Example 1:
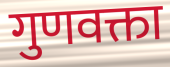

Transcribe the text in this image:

गुणवक्ता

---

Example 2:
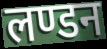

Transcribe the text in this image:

लण्डन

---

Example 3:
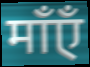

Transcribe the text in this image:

माँएँ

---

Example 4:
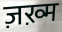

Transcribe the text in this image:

ज़ख़्म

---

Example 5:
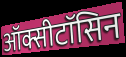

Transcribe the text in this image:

ऑक्सीटॉसिन